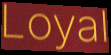
Loyal